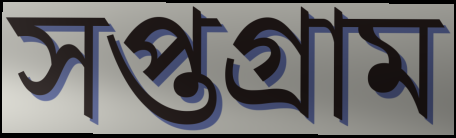
সপ্তগ্রাম